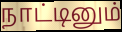
நாட்டினும்